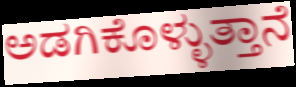
ಅಡಗಿಕೊಳ್ಳುತ್ತಾನೆ